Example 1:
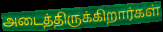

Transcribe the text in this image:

அடைத்திருக்கிறார்கள்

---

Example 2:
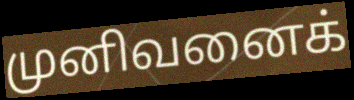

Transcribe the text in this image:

முனிவனைக்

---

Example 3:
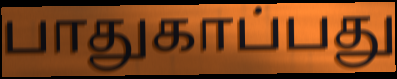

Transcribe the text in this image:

பாதுகாப்பது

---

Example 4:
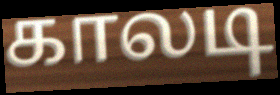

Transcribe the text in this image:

காலடி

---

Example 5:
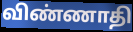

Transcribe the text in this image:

விண்ணாதி